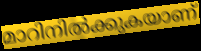
മാറിനിൽക്കുകയാണ്